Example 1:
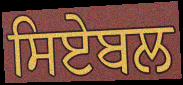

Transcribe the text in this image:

ਸਿਏਬਲ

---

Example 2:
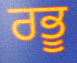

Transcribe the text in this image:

ਰਭੂ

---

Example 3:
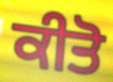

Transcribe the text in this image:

ਕੀਤੋ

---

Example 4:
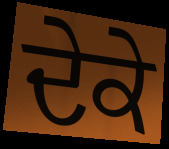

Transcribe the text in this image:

ਦੇਕੇ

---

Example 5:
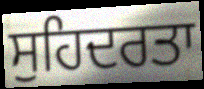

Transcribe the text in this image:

ਸੁਹਿਦਰਤਾ